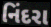
નિંદરા